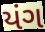
યંગ